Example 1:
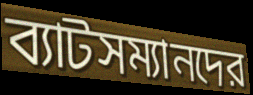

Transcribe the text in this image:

ব্যাটসম্যানদের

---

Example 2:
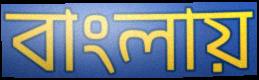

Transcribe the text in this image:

বাংলায়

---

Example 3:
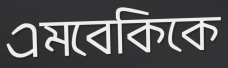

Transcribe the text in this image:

এমবেকিকে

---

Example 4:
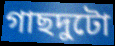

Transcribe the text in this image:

গাছদুটো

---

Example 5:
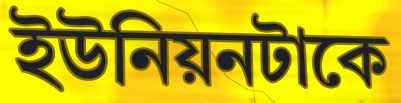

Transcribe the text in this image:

ইউনিয়নটাকে